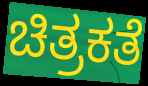
ಚಿತ್ರಕತೆ